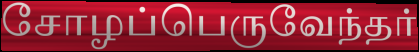
சோழப்பெருவேந்தர்